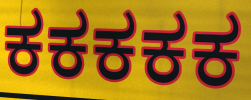
ಕಕಕಕಕ